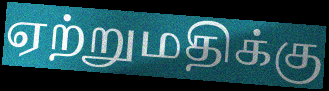
ஏற்றுமதிக்கு